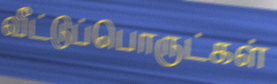
வீட்டுப்பொருட்கள்